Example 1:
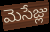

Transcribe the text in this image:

మెసేజ్లు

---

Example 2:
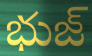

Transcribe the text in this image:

భుజ్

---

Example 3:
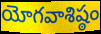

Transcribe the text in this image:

యోగవాశిష్ఠం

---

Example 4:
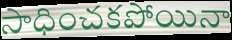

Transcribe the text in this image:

సాధించకపోయినా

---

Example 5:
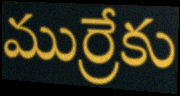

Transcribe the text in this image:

ముర్రేకు